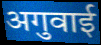
अगुवाई